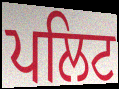
ਪਲਿਟ